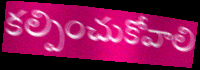
కల్పించుకోవాలి